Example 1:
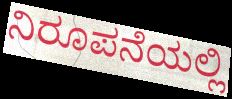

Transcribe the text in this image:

ನಿರೂಪನೆಯಲ್ಲಿ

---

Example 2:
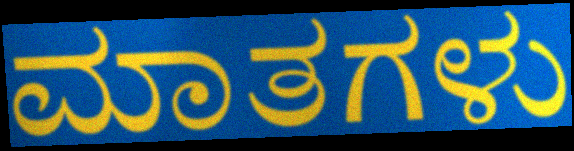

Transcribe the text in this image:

ಮಾತಗಳು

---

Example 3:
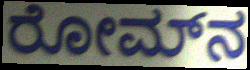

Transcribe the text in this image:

ರೋಮ್‌ನ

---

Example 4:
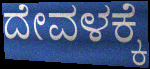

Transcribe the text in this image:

ದೇವಳಕ್ಕೆ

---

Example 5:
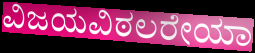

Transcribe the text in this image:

ವಿಜಯವಿಠಲರೇಯಾ